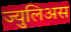
ज्युलिअस